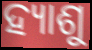
ହ୍ୟାଶୁ